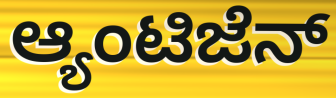
ಆ್ಯಂಟಿಜೆನ್